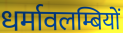
धर्मावलम्बियों